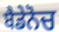
ਬੈਡੇਨੋਚ